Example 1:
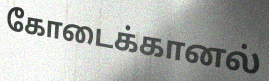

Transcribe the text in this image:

கோடைக்கானல்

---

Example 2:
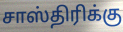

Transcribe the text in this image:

சாஸ்திரிக்கு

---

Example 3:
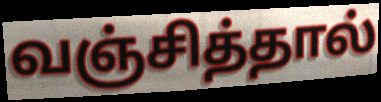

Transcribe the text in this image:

வஞ்சித்தால்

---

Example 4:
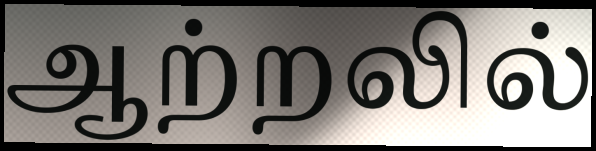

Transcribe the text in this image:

ஆற்றலில்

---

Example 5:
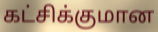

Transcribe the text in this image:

கட்சிக்குமான